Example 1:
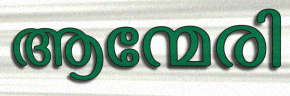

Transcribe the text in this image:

ആന്മേരി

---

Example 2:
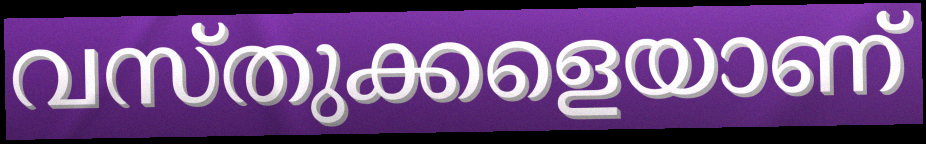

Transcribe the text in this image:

വസ്തുക്കളെയാണ്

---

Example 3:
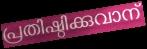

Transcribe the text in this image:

പ്രതിഷ്ഠിക്കുവാന്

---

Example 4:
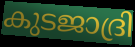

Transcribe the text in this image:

കുടജാദ്രി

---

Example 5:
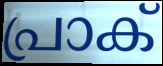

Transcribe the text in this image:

പ്രാക്